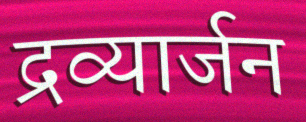
द्रव्यार्जन